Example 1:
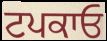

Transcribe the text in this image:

ਟਪਕਾਓ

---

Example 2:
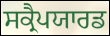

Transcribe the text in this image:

ਸਕ੍ਰੈਪਯਾਰਡ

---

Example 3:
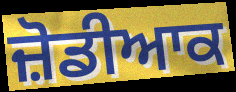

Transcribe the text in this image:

ਜ਼ੋਡੀਆਕ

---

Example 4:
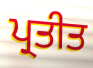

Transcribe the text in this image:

ਪ੍ਰਤੀਤ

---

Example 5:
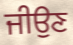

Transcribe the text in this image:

ਜੀਉਣ